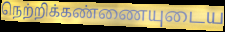
நெற்றிக்கண்ணையுடைய